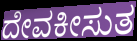
ದೇವಕೀಸುತ